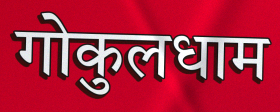
गोकुलधाम